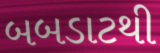
બબડાટથી